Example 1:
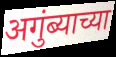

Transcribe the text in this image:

अगुंब्याच्या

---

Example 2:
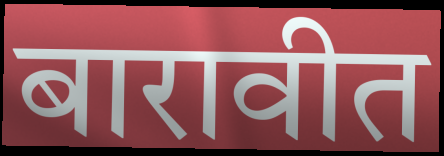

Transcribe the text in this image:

बारावीत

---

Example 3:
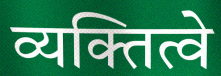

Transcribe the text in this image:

व्यक्तित्वे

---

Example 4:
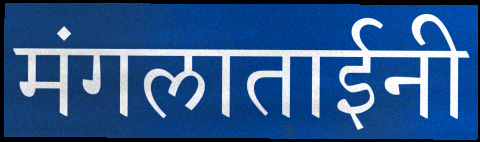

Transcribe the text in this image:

मंगलाताईनी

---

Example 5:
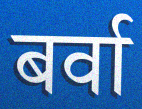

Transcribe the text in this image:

बर्वा